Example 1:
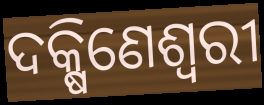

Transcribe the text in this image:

ଦକ୍ଷିଣେଶ୍ଵରୀ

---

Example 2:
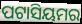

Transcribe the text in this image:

ପଟାସିୟମର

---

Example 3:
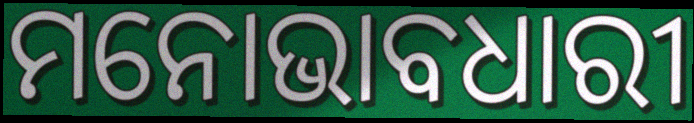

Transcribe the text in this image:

ମନୋଭାବଧାରୀ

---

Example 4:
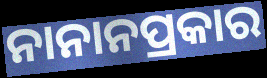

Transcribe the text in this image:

ନାନାନପ୍ରକାର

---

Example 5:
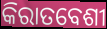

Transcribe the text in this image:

କିରାତବେଶୀ